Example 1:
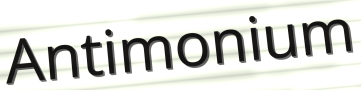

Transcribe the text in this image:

Antimonium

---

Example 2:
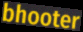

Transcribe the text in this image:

bhooter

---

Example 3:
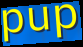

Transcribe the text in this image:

pup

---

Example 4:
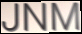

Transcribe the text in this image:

JNM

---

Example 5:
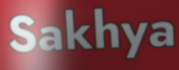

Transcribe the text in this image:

Sakhya